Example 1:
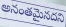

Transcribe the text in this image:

అనంతమైనదని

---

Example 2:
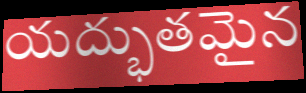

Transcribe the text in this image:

యద్భుతమైన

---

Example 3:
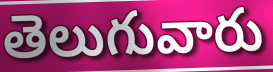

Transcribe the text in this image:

తెలుగువారు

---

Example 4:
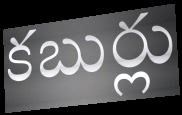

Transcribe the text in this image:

కబుర్లు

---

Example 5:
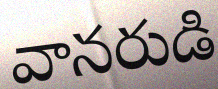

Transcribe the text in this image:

వానరుడి